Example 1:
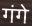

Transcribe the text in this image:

गंगे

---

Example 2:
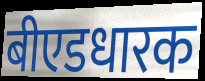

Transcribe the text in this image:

बीएडधारक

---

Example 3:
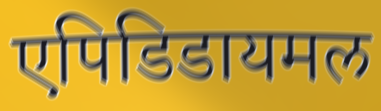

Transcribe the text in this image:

एपिडिडायमल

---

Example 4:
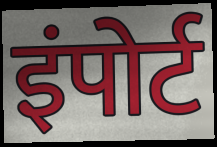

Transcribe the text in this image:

इंपोर्ट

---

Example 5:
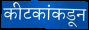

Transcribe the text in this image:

कीटकांकडून